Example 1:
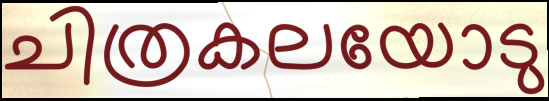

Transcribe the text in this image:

ചിത്രകലയോടു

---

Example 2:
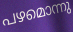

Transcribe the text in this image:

പഴമൊന്നു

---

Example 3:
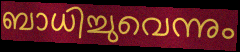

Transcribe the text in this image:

ബാധിച്ചുവെന്നും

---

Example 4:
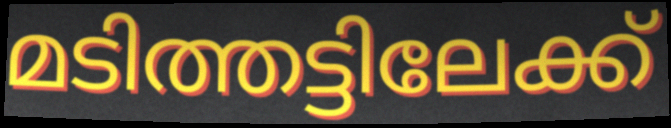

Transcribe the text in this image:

മടിത്തട്ടിലേക്ക്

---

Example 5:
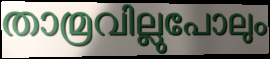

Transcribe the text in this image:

താമ്രവില്ലുപോലും